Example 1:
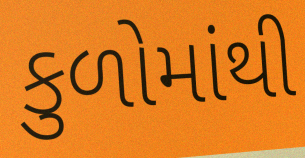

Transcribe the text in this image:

કુળોમાંથી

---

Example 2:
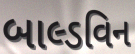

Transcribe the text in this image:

બાલ્ડવિન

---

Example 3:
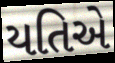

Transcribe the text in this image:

યતિએ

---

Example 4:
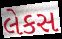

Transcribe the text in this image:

લેકસ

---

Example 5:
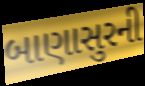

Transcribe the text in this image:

બાણાસુરની